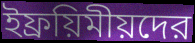
ইফ্রয়িমীয়দের